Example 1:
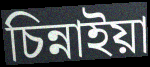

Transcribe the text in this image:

চিন্নাইয়া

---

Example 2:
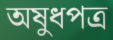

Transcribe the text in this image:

অষুধপত্র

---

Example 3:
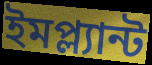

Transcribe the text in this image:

ইমপ্ল্যান্ট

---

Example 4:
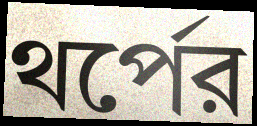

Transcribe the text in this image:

থর্পের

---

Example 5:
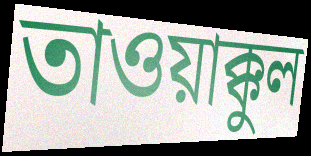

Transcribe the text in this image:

তাওয়াক্কুল